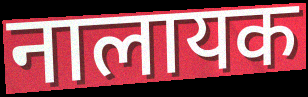
नालायक